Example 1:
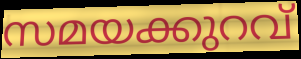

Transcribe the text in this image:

സമയക്കുറവ്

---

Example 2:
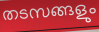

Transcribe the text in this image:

തടസങ്ങളും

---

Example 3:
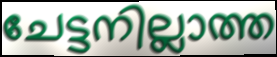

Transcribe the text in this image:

ചേട്ടനില്ലാത്ത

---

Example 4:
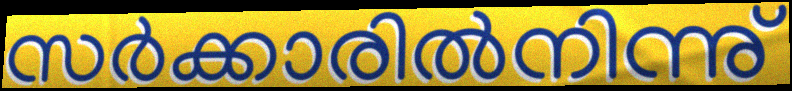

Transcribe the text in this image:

സർക്കാരിൽനിന്നു്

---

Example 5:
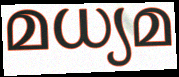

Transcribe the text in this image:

മധ്യമ